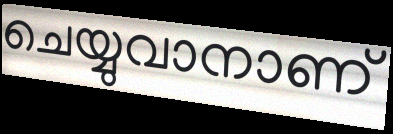
ചെയ്യുവാനാണ്